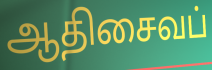
ஆதிசைவப்